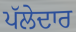
ਪੱਲੇਦਾਰ